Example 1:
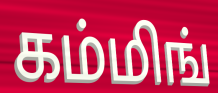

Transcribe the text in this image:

கம்மிங்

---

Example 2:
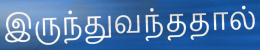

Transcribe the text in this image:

இருந்துவந்ததால்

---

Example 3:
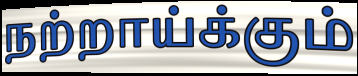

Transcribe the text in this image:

நற்றாய்க்கும்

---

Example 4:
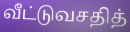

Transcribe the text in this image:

வீட்டுவசதித்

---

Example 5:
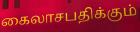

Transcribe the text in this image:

கைலாசபதிக்கும்